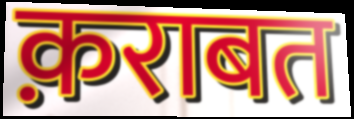
क़राबत